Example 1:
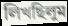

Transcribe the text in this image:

লিখছিলুম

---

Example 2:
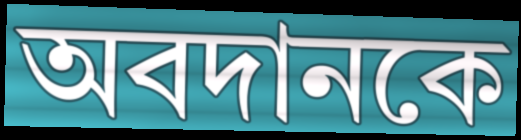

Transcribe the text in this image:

অবদানকে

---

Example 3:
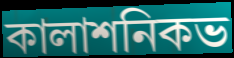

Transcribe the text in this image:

কালাশনিকভ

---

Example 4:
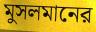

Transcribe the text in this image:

মুসলমানের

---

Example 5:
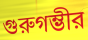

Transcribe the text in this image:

গুরুগম্ভীর